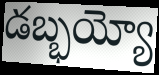
డబ్భయ్యో